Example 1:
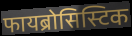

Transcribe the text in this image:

फायब्रोसिस्टिक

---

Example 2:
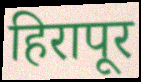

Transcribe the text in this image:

हिरापूर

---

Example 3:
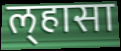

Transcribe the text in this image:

ल्हासा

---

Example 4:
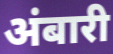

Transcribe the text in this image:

अंबारी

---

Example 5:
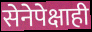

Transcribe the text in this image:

सेनेपेक्षाही